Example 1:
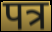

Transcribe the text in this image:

पत्र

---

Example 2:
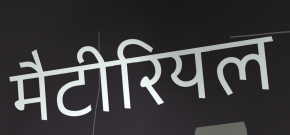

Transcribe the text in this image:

मैटीरियल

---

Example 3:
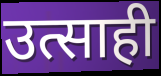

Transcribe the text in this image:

उत्साही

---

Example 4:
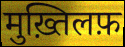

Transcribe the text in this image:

मुख़्तिलफ़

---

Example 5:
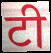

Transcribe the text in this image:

टी